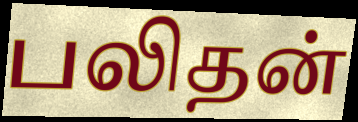
பலிதன்